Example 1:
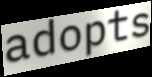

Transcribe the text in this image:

adopts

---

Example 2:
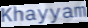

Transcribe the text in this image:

Khayyam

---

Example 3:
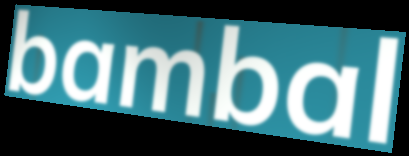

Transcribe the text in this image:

bambal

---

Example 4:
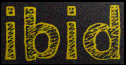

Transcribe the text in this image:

ibid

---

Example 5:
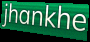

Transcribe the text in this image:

jhankhe